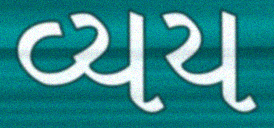
વ્યય